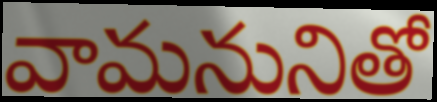
వామనునితో